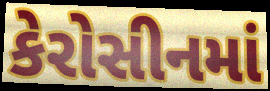
કેરોસીનમાં